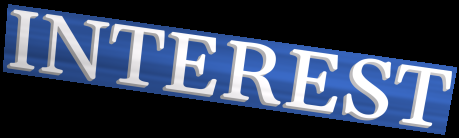
INTEREST